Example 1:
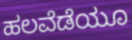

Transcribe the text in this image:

ಹಲವೆಡೆಯೂ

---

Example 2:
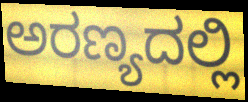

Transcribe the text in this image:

ಅರಣ್ಯದಲ್ಲಿ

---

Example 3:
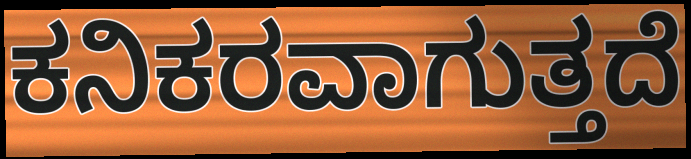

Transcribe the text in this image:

ಕನಿಕರವಾಗುತ್ತದೆ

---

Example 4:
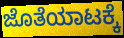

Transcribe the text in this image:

ಜೊತೆಯಾಟಕ್ಕೆ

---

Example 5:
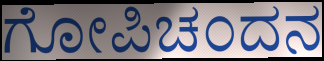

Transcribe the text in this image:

ಗೋಪಿಚಂದನ